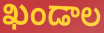
ఖండాల